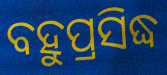
ବହୁପ୍ରସିଦ୍ଧ